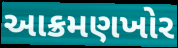
આક્રમણખોર